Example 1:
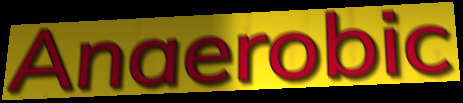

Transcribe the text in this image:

Anaerobic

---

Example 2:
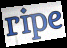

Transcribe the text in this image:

ripe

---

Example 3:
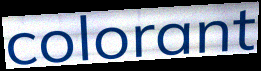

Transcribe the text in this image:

colorant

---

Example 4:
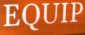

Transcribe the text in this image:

EQUIP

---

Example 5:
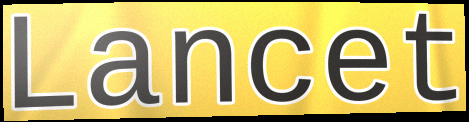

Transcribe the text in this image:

Lancet